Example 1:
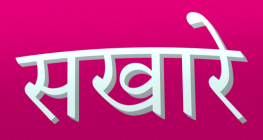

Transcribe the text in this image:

सखारे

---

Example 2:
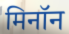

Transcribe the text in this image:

मिनॉन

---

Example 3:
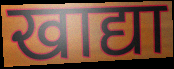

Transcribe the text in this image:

खाद्या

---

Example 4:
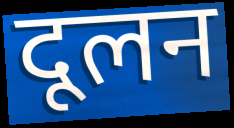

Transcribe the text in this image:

दूलन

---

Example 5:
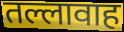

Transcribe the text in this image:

तल्लावाह